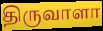
திருவாளா